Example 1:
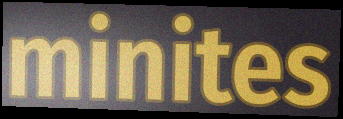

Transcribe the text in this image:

minites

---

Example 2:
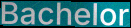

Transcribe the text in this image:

Bachelor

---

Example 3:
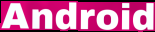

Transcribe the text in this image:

Android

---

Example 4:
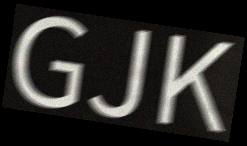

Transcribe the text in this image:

GJK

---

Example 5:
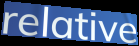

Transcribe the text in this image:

relative